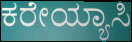
ಕರೇಯ್ಯಾಸಿ